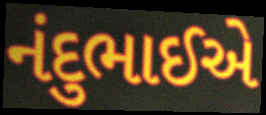
નંદુભાઈએ